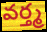
వర్త్మ